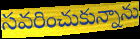
సవరించుకున్నాను